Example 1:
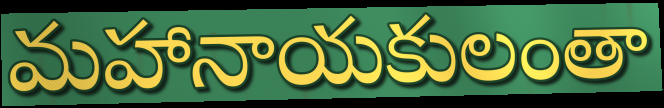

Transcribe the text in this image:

మహానాయకులంతా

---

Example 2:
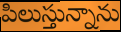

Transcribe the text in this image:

పిలుస్తున్నాను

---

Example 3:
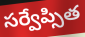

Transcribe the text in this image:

సర్వేప్సిత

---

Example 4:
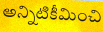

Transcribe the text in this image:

అన్నిటికీమించి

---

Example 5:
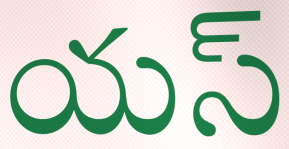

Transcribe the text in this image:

యస్